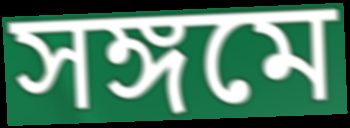
সঙ্গমে